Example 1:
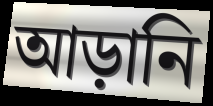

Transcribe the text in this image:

আড়ানি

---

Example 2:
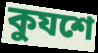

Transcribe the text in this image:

কুযশে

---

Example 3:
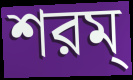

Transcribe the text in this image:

শরম্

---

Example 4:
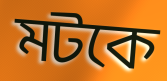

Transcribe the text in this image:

মটকে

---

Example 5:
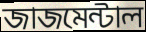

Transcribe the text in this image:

জাজমেন্টাল